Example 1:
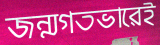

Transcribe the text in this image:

জন্মগতভাৱেই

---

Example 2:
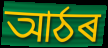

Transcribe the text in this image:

আঠৰ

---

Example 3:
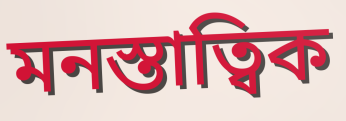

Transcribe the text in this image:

মনস্তাত্বিক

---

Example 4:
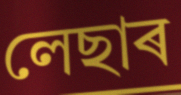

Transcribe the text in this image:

লেছাৰ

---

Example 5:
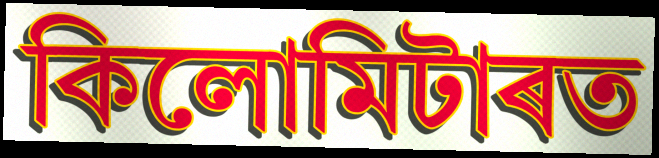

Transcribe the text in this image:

কিলোমিটাৰত